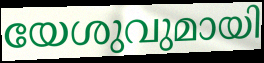
യേശുവുമായി